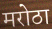
मरोठा